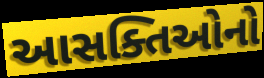
આસક્તિઓનો